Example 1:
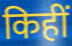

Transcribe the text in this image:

किहीं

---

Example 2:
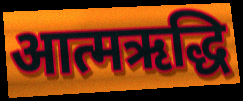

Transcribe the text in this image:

आत्मऋद्धि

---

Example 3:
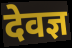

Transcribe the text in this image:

देवज्ञ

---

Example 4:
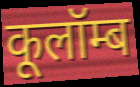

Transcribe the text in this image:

कूलॉम्ब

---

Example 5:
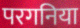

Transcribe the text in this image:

परगनिया